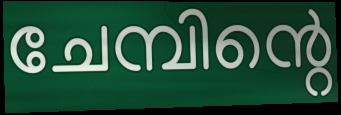
ചേമ്പിന്റെ